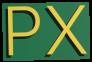
PX